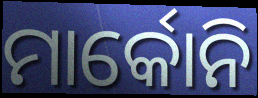
ମାର୍କୋନି